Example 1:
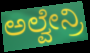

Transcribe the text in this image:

ಅಲ್ವೇನ್ರಿ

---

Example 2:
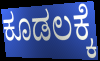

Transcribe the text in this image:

ಕೂಡಲಕ್ಕೆ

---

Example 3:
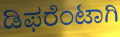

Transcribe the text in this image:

ಡಿಫರೆಂಟಾಗಿ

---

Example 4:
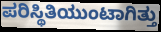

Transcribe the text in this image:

ಪರಿಸ್ಥಿತಿಯುಂಟಾಗಿತ್ತು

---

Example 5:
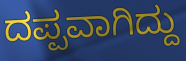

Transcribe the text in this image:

ದಪ್ಪವಾಗಿದ್ದು